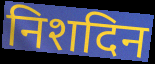
निशदिन